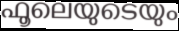
ഫൂലെയുടെയും